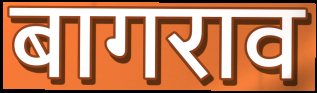
बागराव